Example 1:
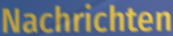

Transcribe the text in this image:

Nachrichten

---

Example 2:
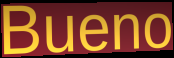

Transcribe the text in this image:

Bueno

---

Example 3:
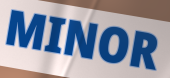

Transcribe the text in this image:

MINOR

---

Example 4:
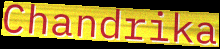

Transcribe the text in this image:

Chandrika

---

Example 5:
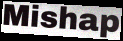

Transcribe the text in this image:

Mishap